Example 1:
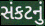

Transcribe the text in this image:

સંકટનું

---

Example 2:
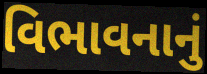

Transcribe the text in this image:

વિભાવનાનું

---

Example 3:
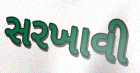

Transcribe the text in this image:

સરખાવી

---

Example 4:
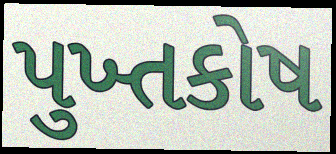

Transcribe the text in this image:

પુખ્તકોષ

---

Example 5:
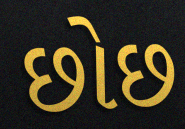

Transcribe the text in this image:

છોછ